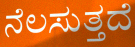
ನೆಲಸುತ್ತದೆ